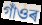
গাঁওৰ